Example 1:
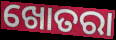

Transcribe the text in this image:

ଖୋତରା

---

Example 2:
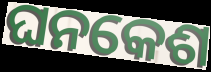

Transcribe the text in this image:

ଘନକେଶ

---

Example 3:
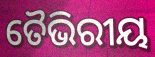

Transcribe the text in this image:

ତୈଭିରୀୟ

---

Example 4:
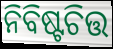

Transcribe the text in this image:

ନିବିଷ୍ଟଚିତ୍ତ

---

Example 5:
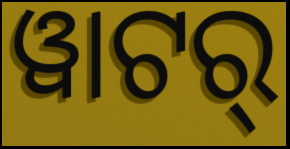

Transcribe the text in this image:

ୱାଟର୍